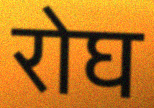
रोघ